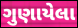
ગુણાયેલા